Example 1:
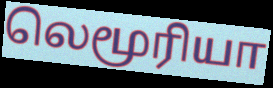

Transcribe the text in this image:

லெமூரியா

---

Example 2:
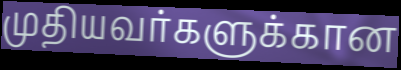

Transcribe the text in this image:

முதியவர்களுக்கான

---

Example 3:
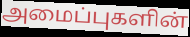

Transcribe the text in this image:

அமைப்புகளின்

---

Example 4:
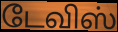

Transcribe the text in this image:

டேவிஸ்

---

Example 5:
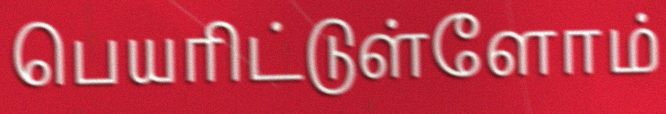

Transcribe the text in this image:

பெயரிட்டுள்ளோம்